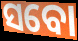
ସବୋ